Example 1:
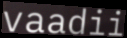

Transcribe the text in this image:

vaadii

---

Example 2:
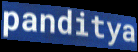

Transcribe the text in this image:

panditya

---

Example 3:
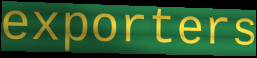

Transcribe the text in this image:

exporters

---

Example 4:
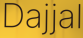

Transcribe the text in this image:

Dajjal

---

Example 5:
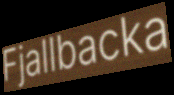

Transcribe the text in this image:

Fjallbacka